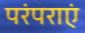
परंपराएं